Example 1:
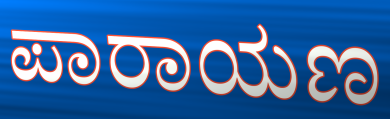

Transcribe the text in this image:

ಪಾರಾಯಣ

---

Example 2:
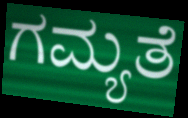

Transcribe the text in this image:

ಗಮ್ಯತೆ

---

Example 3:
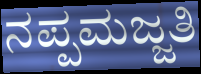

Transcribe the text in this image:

ನಪ್ಪಮಜ್ಜತಿ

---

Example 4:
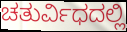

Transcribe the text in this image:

ಚತುರ್ವಿಧದಲ್ಲಿ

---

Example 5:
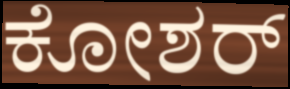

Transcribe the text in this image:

ಕೋಶರ್